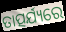
ତାତ୍ପର୍ଯ୍ୟରେ